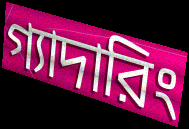
গ্যাদারিং